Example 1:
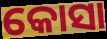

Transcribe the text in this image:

କୋସା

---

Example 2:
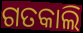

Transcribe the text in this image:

ଗତକାଲି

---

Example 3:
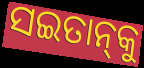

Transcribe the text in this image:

ସଇତାନ୍‌କୁ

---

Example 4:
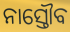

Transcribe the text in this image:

ନାସ୍ତୌବ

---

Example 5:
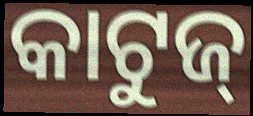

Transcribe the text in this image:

କାଟୁଜ୍